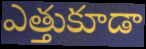
ఎత్తుకూడా